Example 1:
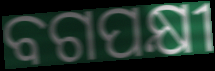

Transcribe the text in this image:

ବଗପକ୍ଷୀ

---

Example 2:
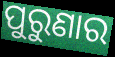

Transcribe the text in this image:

ପୁରୁଣାର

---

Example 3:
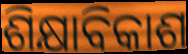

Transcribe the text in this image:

ଶିକ୍ଷାବିକାଶ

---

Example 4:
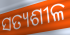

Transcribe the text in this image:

ସତ୍ୟଶୀଳ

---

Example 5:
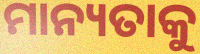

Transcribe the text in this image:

ମାନ୍ୟତାକୁ